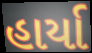
હાર્યા